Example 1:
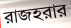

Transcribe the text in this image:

রাজহরার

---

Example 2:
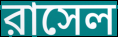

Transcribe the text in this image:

রাসেল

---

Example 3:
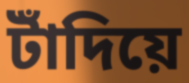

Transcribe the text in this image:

টাঁদিয়ে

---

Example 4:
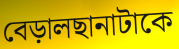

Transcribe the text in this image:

বেড়ালছানাটাকে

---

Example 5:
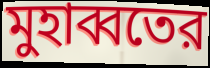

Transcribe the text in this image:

মুহাব্বতের